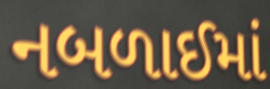
નબળાઈમાં